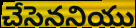
చేసెననియు